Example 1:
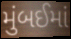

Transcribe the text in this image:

મુંબઈમાં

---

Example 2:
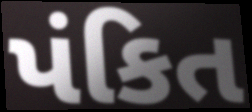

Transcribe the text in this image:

પંકિત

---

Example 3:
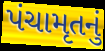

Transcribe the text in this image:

પંચામૃતનું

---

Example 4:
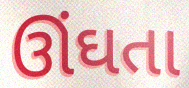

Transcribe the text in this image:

ઊંઘતા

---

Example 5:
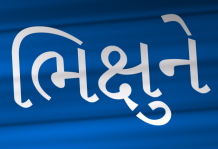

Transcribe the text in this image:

ભિક્ષુને